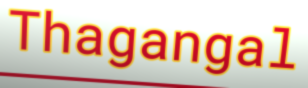
Thagangal